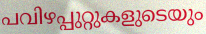
പവിഴപ്പുറ്റുകളുടെയും